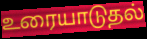
உரையாடுதல்